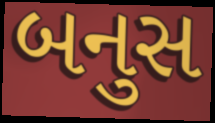
બનુસ